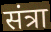
संत्रा